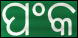
ପଂକ